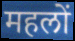
महलों